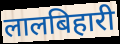
लालबिहारी